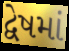
દ્વેષમાં